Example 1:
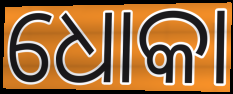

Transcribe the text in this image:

ଧୋକା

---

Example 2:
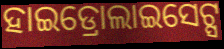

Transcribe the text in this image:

ହାଇଡ୍ରୋଲାଇସେଟ୍ସ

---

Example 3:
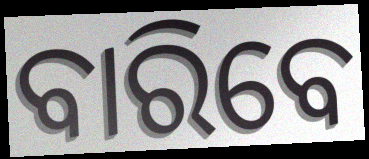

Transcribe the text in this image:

ବାରିବେ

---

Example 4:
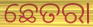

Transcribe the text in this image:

ଛେତରା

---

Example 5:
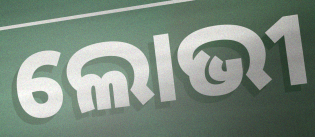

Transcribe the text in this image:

ଲୋଭୀ